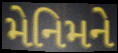
મેનિમને